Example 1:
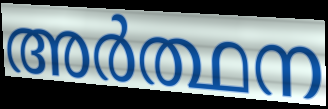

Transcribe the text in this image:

അർത്ഥന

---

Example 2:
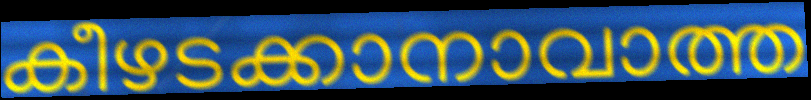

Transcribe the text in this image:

കീഴടക്കാനാവാത്ത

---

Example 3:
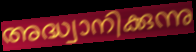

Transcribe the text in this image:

അദ്ധ്വാനിക്കുന്നു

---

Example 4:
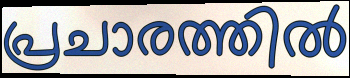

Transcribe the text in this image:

പ്രചാരത്തിൽ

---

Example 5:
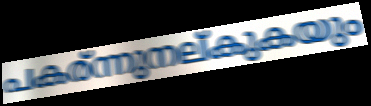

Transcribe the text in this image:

പകര്ന്നുനല്കുകയും